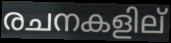
രചനകളില്